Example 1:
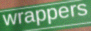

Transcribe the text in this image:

wrappers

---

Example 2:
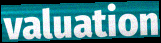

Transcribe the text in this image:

valuation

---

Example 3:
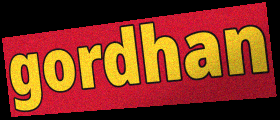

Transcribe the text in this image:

gordhan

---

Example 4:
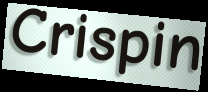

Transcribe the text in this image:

Crispin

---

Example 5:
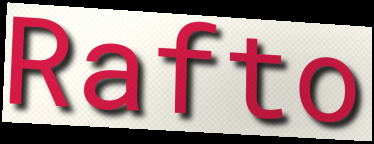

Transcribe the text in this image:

Rafto